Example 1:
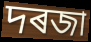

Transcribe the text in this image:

দৰজা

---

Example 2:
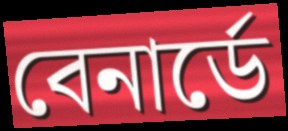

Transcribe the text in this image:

বেনাৰ্ডে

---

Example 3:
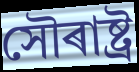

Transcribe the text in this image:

সৌৰাষ্ট্ৰ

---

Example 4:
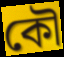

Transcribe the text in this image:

কৌ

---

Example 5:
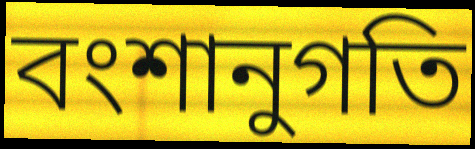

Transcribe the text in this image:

বংশানুগতি